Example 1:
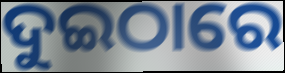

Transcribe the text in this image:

ଦୁଇଠାରେ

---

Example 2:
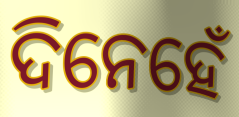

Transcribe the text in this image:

ଦିନେହେଁ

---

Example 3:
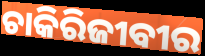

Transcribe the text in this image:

ଚାକିରିଜୀବୀର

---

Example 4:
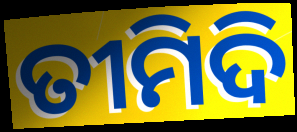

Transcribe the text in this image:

ତୀମିଦି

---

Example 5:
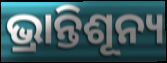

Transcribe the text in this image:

ଭ୍ରାନ୍ତିଶୂନ୍ୟ